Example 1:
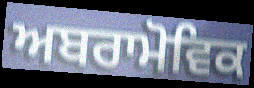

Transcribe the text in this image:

ਅਬਰਾਮੋਵਿਕ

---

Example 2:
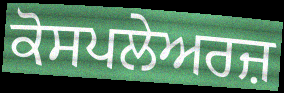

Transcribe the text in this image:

ਕੋਸਪਲੇਅਰਜ਼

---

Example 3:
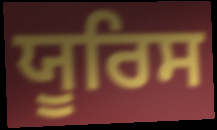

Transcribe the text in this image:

ਯੂਰਿਸ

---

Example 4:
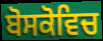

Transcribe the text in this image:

ਬੋਸਕੋਵਿਚ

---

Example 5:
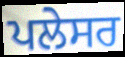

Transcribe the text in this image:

ਪਲੇਸਰ